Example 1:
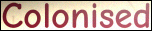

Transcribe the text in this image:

Colonised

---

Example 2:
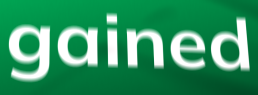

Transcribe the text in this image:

gained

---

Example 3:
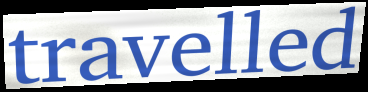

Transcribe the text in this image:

travelled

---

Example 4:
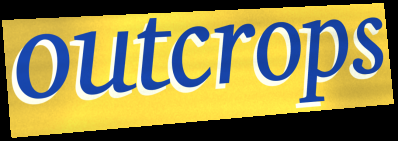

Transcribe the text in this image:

outcrops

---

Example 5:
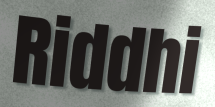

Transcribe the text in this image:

Riddhi